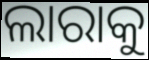
ଲାରାକୁ